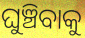
ଘୁଞ୍ଚିବାକୁ